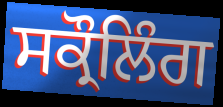
ਸਕ੍ਰੌਲਿੰਗ